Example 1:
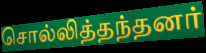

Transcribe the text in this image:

சொல்லித்தந்தனர்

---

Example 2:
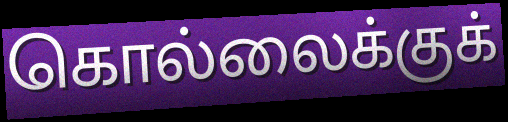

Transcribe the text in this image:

கொல்லைக்குக்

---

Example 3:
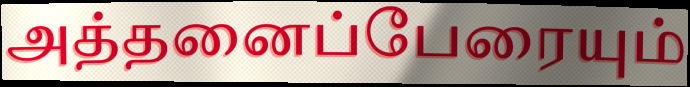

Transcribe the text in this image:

அத்தனைப்பேரையும்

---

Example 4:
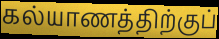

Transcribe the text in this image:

கல்யாணத்திற்குப்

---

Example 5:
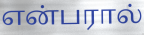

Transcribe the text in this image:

என்பரால்